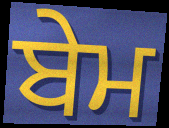
ਬੇਮ